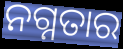
ନଗ୍ନତାର